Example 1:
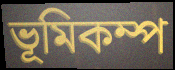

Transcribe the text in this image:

ভূমিকম্প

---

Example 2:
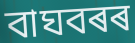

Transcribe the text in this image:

বাঘবৰৰ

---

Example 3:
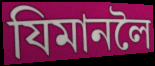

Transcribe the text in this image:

যিমানলৈ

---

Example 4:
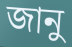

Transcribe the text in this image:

জানু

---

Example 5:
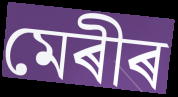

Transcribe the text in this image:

মেৰীৰ